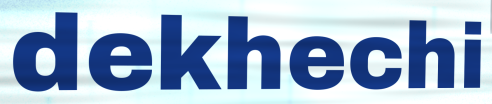
dekhechi